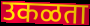
उकळता